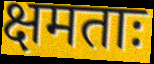
क्षमताः